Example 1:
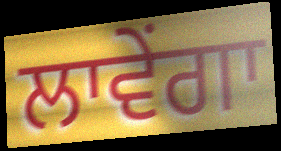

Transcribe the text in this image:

ਲਾਵੇਂਗਾ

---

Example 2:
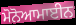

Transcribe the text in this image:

ਮੋਨੋਆਮਾਈਨ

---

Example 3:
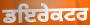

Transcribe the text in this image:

ਡਇਰੇਕਟਰ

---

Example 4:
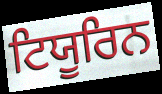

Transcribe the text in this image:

ਟਿਯੂਰਿਨ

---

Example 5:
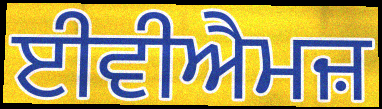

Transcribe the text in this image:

ਈਵੀਐਮਜ਼